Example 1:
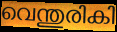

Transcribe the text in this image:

വെന്തുരികി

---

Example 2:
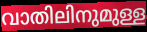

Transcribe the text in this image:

വാതിലിനുമുള്ള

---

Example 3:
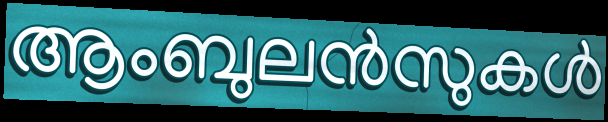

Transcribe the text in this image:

ആംബുലൻസുകൾ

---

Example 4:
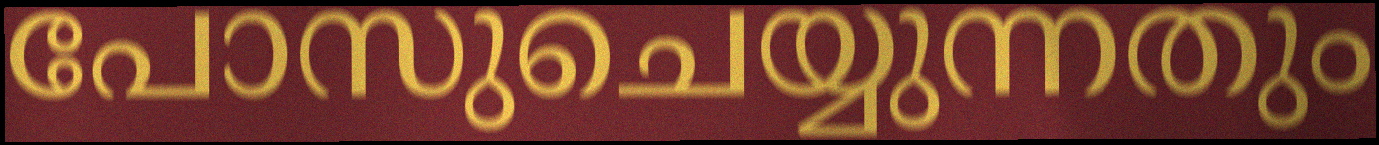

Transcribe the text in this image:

പോസുചെയ്യുന്നതും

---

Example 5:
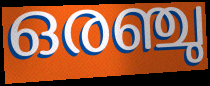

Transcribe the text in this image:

ഒരഞ്ചു